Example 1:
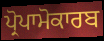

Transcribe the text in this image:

ਪ੍ਰੋਪਾਮੋਕਾਰਬ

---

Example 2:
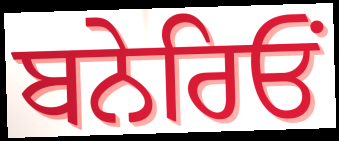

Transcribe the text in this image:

ਬਨੇਰਿਓਂ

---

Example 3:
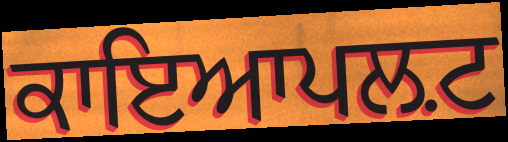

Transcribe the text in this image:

ਕਾਇਆਪਲ਼ਟ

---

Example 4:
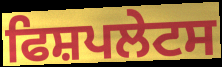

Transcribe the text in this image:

ਫਿਸ਼ਪਲੇਟਸ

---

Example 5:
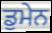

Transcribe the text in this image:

ਡੁਮੇਨ